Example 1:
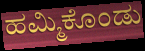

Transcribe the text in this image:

ಹಮ್ಮಿಕೊಂಡು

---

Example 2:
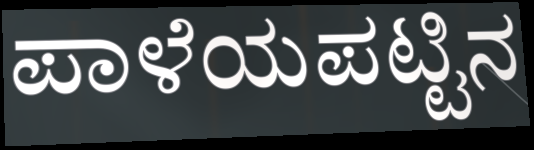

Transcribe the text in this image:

ಪಾಳೆಯಪಟ್ಟಿನ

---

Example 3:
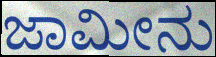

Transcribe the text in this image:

ಜಾಮೀನು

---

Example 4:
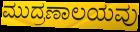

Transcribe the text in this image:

ಮುದ್ರಣಾಲಯವು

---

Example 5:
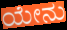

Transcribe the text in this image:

ಯೇನು